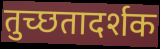
तुच्छतादर्शक